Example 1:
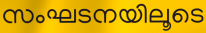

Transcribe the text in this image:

സംഘടനയിലൂടെ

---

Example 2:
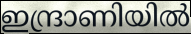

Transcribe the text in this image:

ഇന്ദ്രാണിയിൽ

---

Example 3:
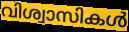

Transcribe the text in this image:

വിശ്വാസികൾ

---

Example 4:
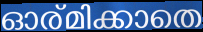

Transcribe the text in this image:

ഓര്മിക്കാതെ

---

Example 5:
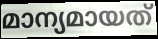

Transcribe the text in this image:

മാന്യമായത്